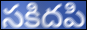
సకిదపి